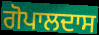
ਗੋਪਾਲਦਾਸ